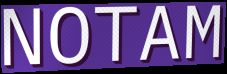
NOTAM